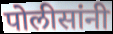
पोलीसांनी